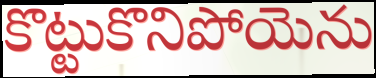
కొట్టుకొనిపోయెను